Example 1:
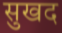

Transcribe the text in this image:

सुखद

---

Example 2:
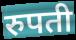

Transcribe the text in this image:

रुपती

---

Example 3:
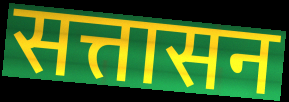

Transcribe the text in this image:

सत्तासन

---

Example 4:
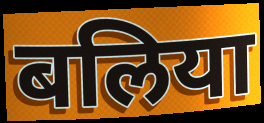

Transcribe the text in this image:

बलिया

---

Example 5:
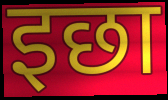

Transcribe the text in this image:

इछा